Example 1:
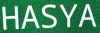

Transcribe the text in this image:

HASYA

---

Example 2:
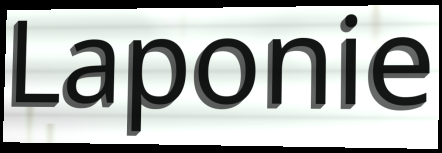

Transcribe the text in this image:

Laponie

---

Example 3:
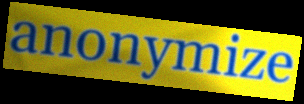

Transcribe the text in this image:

anonymize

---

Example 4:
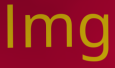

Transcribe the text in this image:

Img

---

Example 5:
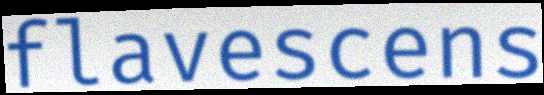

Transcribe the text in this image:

flavescens